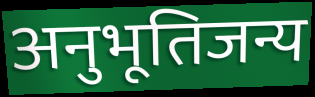
अनुभूतिजन्य